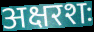
अक्षरशः